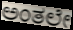
ಅಂತಲೇ